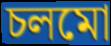
চলমো